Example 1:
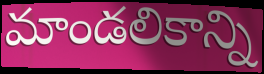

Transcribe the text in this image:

మాండలికాన్ని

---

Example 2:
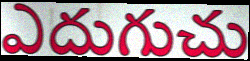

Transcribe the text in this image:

ఎదుగుచు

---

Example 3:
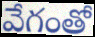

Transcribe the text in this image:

వేగంతో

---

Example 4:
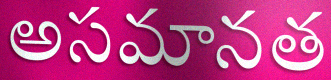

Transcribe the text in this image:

అసమానత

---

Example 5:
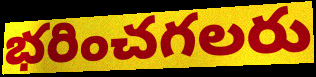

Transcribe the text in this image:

భరించగలరు